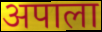
अपाला